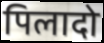
पिलादो